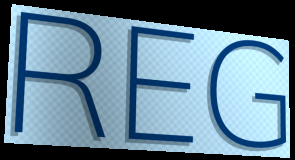
REG